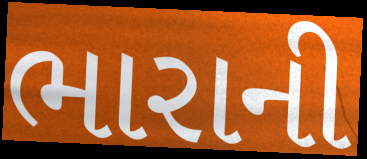
ભારાની